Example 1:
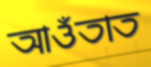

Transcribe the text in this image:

আওঁতাত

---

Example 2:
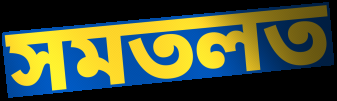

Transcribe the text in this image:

সমতলত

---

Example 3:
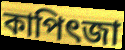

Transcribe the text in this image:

কাপিৎজা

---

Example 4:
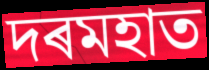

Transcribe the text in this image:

দৰমহাত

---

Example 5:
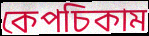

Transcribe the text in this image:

কেপচিকাম